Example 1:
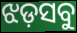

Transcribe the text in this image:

ଝଡ଼ସବୁ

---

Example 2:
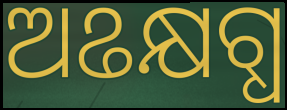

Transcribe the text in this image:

ଅଌକ୍ଷଗ୍ଧ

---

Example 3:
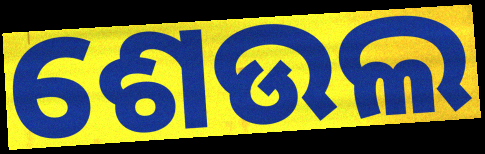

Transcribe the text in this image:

ଶେଉଲ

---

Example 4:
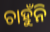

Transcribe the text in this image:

ଚାହୁଁନି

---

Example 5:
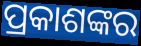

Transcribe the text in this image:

ପ୍ରକାଶଙ୍କର